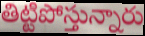
తిట్టిపోస్తున్నారు